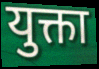
युक्ता